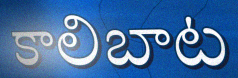
కాలిబాట